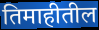
तिमाहीतील